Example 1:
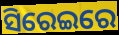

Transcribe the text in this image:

ସିରେଇରେ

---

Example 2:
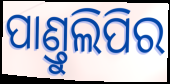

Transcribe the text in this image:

ପାଣ୍ତୁଲିପିର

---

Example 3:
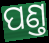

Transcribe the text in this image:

ପଣ୍ତ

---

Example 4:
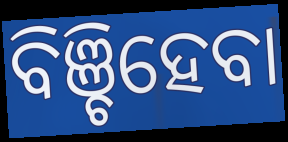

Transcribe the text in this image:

ବିଞ୍ଚିହେବା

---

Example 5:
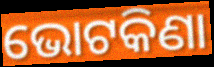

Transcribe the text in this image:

ଭୋଟକିଣା